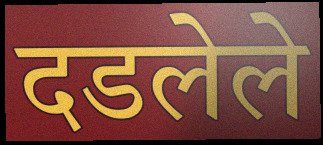
दडलेले